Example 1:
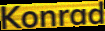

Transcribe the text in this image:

Konrad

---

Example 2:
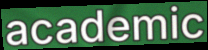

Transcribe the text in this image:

academic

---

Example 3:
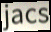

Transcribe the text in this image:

jacs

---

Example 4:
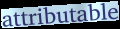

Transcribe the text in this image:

attributable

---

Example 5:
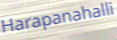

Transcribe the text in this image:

Harapanahalli